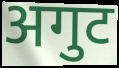
अगुट